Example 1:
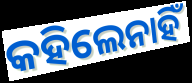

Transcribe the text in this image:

କହିଲେନାହିଁ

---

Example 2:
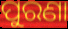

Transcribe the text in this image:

ପୁରଣା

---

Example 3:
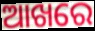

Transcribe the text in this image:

ଆଖରେ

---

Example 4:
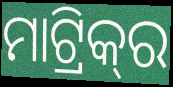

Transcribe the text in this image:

ମାଟ୍ରିକ୍‌ର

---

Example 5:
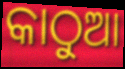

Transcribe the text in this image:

କାଠୁଆ